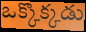
ఒక్కొక్కడు